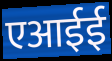
एआईई